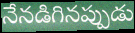
నేనడిగినప్పుడు